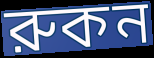
রুকন